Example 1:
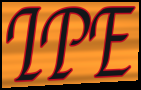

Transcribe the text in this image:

IPE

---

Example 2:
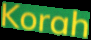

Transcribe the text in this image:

Korah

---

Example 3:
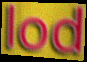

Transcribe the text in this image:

lod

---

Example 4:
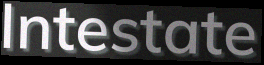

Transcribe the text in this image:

Intestate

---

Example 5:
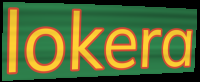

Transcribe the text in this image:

lokera